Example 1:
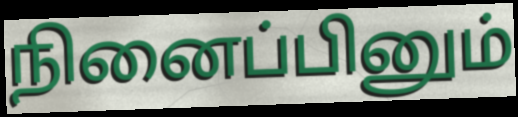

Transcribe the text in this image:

நினைப்பினும்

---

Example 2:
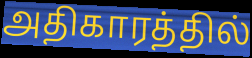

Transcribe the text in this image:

அதிகாரத்தில்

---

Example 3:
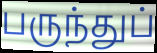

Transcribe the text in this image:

பருந்துப்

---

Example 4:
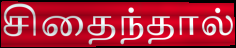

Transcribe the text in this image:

சிதைந்தால்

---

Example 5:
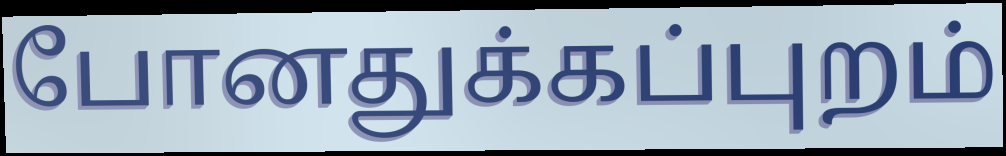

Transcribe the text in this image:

போனதுக்கப்புறம்